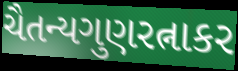
ચૈતન્યગુણરત્નાકર